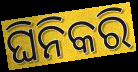
ଘିନିକରି